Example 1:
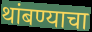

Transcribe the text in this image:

थांबण्याचा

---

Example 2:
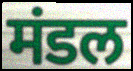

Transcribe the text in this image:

मंडल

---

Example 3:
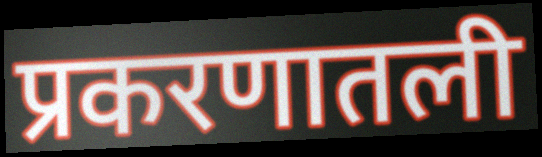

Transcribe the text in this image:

प्रकरणातली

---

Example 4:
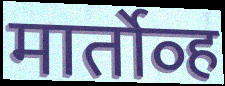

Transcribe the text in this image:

मार्तोव्ह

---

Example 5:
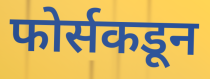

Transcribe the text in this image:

फोर्सकडून